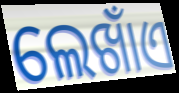
ଲେଖାଁଏ